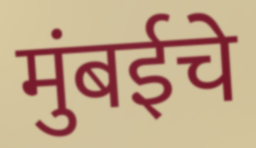
मुंबईचे